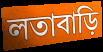
লতাবাড়ি